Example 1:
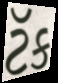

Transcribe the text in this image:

ટૅક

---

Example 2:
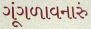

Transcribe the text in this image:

ગૂંગળાવનારું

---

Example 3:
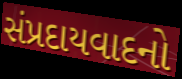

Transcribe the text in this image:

સંપ્રદાયવાદનો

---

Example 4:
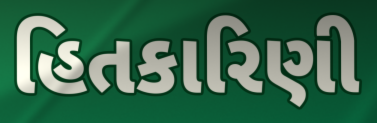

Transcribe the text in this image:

હિતકારિણી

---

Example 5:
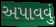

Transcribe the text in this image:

અપાવવું